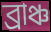
ব্রাঞ্চ